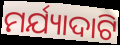
ମର୍ଯ୍ୟାଦାଟି